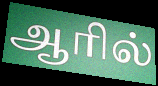
ஆரில்